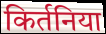
किर्तनिया